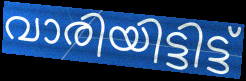
വാരിയിട്ടിട്ട്